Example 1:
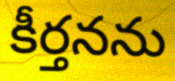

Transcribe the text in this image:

కీర్తనను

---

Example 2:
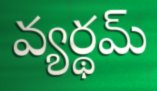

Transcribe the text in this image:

వ్యర్థమ్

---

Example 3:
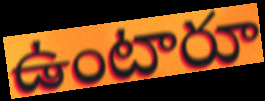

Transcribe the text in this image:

ఉంటారూ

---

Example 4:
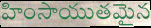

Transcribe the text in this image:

హింసాయుతమైన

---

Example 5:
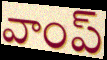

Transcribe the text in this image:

వాంప్